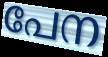
പേന